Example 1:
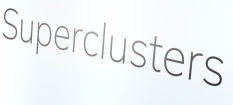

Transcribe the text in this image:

Superclusters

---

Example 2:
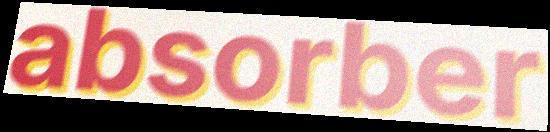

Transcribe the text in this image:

absorber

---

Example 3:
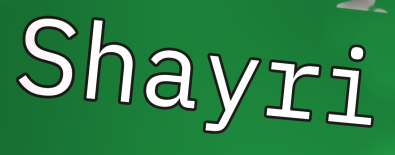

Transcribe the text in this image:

Shayri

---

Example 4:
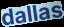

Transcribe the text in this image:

dallas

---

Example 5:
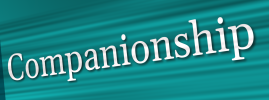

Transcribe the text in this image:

Companionship